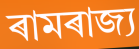
ৰামৰাজ্য